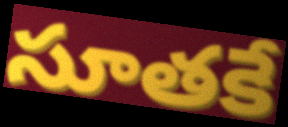
సూతకే